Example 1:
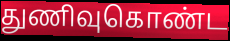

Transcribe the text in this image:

துணிவுகொண்ட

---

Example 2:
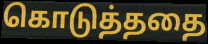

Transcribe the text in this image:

கொடுத்ததை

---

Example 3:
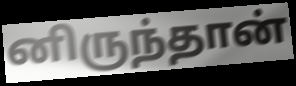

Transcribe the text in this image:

னிருந்தான்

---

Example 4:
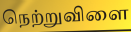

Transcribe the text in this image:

நெற்றுவிளை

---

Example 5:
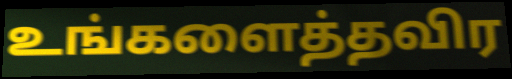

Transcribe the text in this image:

உங்களைத்தவிர